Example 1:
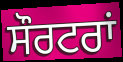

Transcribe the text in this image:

ਸੌਰਟਰਾਂ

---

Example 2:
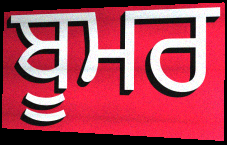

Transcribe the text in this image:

ਬੂਮਰ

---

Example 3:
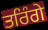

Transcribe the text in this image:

ਤਰਿੰਗੇ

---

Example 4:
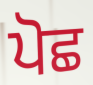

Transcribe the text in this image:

ਪੋਛ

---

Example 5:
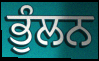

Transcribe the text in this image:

ਭੁੰਲਨ